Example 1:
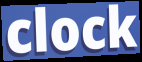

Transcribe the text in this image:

clock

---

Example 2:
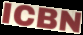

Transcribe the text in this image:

ICBN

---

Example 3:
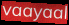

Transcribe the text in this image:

vaayaal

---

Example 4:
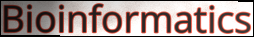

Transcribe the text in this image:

Bioinformatics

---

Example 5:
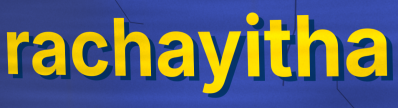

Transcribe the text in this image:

rachayitha